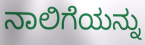
ನಾಲಿಗೆಯನ್ನು